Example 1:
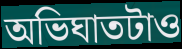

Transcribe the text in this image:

অভিঘাতটাও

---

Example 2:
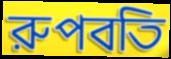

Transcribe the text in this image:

রুপবতি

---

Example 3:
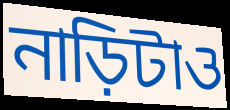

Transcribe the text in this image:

নাড়িটাও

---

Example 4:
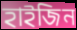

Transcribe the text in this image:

হাইজিন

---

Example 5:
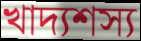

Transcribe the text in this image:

খাদ্যশস্য